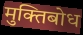
मुक्तिबोध